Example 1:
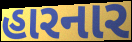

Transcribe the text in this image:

હારનાર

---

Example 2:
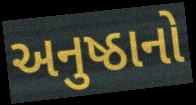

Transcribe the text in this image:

અનુષ્ઠાનો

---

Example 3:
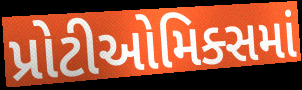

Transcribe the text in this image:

પ્રોટીઓમિક્સમાં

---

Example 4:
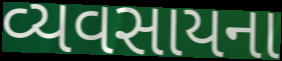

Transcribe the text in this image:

વ્યવસાયના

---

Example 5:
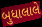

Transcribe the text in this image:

બુધાલાલે